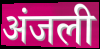
अंजली